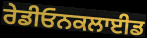
ਰੇਡੀਓਨਕਲਾਈਡ